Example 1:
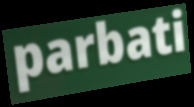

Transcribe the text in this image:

parbati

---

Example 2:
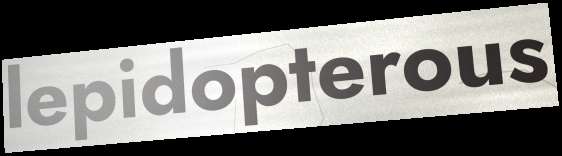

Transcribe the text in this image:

lepidopterous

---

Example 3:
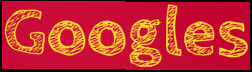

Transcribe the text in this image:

Googles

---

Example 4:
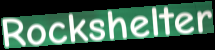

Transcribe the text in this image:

Rockshelter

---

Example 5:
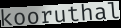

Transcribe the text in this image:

kooruthal